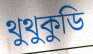
থুথুকুডি